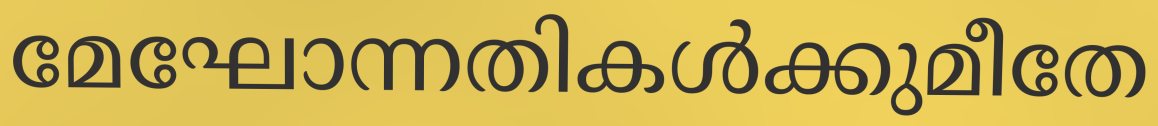
മേഘോന്നതികൾക്കുമീതേ